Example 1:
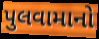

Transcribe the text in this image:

પુલવામાનો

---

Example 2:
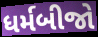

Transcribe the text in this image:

ધર્મબીજો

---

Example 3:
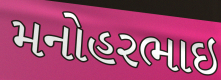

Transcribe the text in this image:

મનોહરભાઇ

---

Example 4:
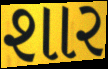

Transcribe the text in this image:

શાર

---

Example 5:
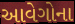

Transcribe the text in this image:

આવેગોના